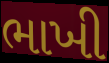
ભાખી